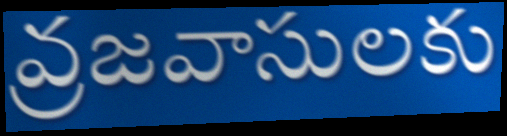
వ్రజవాసులకు